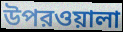
উপরওয়ালা